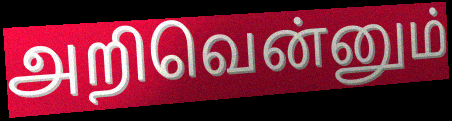
அறிவென்னும்